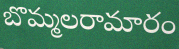
బొమ్మలరామారం